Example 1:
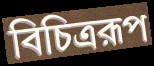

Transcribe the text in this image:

বিচিত্ররূপ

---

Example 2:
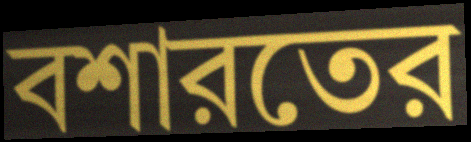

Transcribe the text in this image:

বশারতের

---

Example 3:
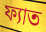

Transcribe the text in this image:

ফ্যাত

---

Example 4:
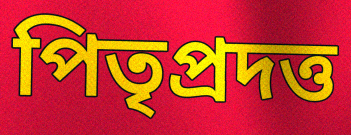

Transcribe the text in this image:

পিতৃপ্রদত্ত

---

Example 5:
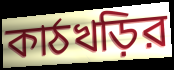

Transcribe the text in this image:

কাঠখড়ির